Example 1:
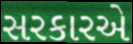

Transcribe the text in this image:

સરકારએ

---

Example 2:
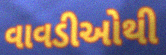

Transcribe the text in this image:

વાવડીઓથી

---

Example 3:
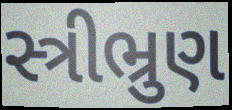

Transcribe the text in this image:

સ્ત્રીભ્રુણ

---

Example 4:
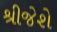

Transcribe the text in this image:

શ્રીજેશે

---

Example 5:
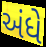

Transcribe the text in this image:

અંધે